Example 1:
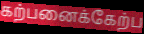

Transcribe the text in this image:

கற்பனைக்கேற்ப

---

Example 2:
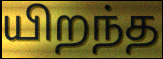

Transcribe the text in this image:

யிறந்த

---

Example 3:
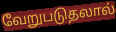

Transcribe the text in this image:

வேறுபடுதலால்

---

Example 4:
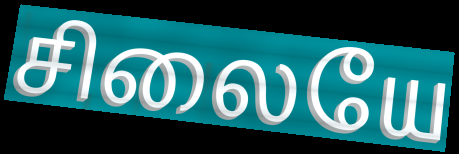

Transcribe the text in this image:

சிலையே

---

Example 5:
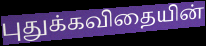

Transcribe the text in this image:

புதுக்கவிதையின்